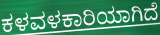
ಕಳವಳಕಾರಿಯಾಗಿದೆ